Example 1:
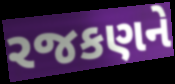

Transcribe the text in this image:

રજકણને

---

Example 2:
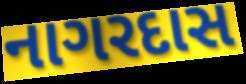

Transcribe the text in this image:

નાગરદાસ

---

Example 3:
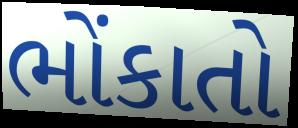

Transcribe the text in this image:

ભોંકાતો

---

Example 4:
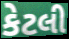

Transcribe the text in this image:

કેટલી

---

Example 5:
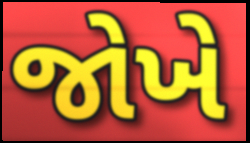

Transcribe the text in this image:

જોખે